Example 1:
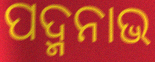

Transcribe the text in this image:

ପଦ୍ମନାଭ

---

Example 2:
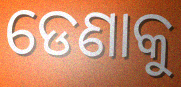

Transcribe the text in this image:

ଡେଣାକୁ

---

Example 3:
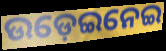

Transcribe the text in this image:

ଉଡ଼େଇନେଇ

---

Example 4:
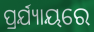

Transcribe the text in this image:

ପ୍ରର୍ଯ୍ୟାୟରେ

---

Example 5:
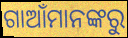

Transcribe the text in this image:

ଗାଆଁମାନଙ୍କରୁ